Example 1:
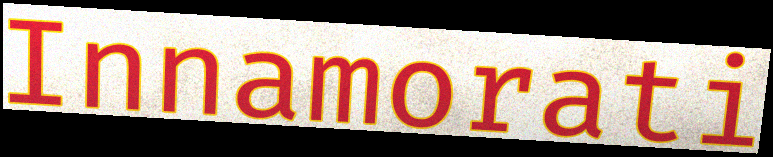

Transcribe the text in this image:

Innamorati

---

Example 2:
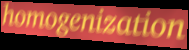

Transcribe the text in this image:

homogenization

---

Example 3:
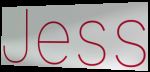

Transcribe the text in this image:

Jess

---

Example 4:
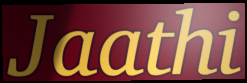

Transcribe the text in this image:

Jaathi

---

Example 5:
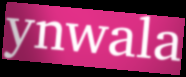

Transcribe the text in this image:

ynwala